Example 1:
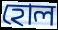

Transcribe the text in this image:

হোল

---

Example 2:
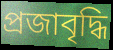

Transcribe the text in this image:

প্রজাবৃদ্ধি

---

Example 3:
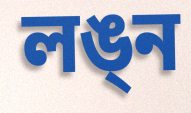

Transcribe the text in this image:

লঙ্ন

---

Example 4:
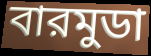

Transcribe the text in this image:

বারমুডা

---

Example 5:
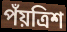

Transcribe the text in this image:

পঁয়ত্রিশ